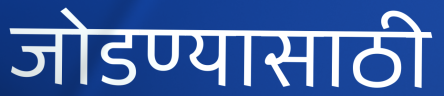
जोडण्यासाठी